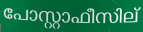
പോസ്റ്റാഫീസില്